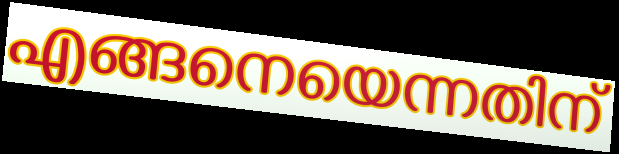
എങ്ങനെയെന്നതിന്